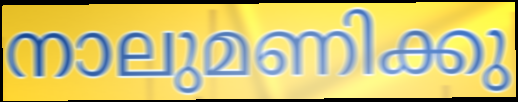
നാലുമണിക്കു